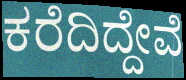
ಕರೆದಿದ್ದೇವೆ